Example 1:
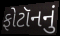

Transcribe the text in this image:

ફોટૉનનું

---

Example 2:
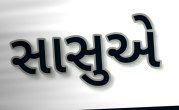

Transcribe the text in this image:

સાસુએ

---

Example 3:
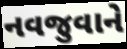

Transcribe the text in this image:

નવજુવાને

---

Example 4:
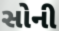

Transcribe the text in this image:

સોની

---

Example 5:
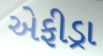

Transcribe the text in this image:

એફીડ્રા